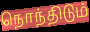
நொந்திடும்